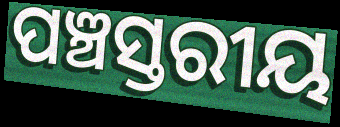
ପଞ୍ଚସ୍ତରୀୟ